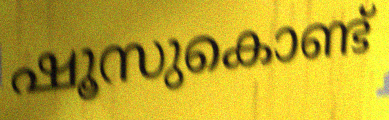
ഷൂസുകൊണ്ട്